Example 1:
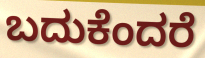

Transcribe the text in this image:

ಬದುಕೆಂದರೆ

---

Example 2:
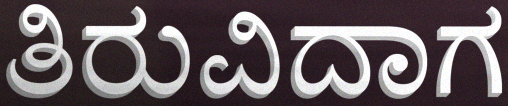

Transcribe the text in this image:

ತಿರುವಿದಾಗ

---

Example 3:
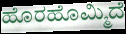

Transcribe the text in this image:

ಹೊರಹೊಮ್ಮಿದೆ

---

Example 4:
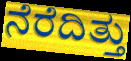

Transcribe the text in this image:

ನೆರೆದಿತ್ತು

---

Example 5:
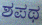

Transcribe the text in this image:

ಶಪಥ